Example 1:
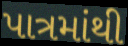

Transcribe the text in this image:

પાત્રમાંથી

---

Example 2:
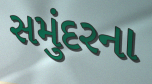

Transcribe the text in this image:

સમુંદરના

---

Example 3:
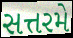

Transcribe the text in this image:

સત્તરમે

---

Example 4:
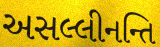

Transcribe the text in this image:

અસલ્લીનન્તિ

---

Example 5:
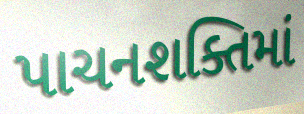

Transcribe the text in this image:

પાચનશક્તિમાં